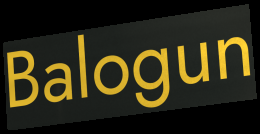
Balogun